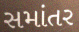
સમાંતર